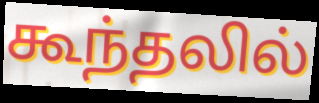
கூந்தலில்